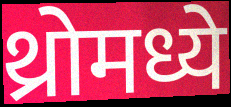
थ्रोमध्ये